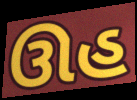
ઊહ